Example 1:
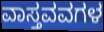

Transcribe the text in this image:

ವಾಸ್ತವವಗಳ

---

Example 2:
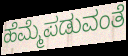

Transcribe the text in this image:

ಹೆಮ್ಮೆಪಡುವಂತೆ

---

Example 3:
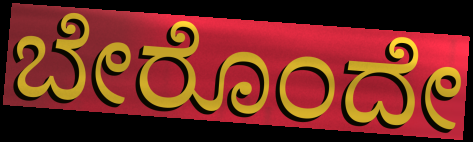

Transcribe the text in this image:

ಬೇರೊಂದೇ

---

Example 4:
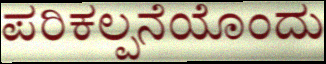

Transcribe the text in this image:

ಪರಿಕಲ್ಪನೆಯೊಂದು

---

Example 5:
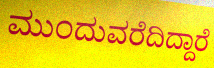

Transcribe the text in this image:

ಮುಂದುವರೆದಿದ್ದಾರೆ